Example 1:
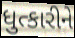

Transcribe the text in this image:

ધુત્કારીને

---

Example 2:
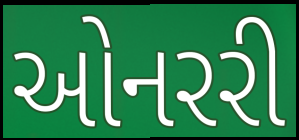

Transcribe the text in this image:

ઓનરરી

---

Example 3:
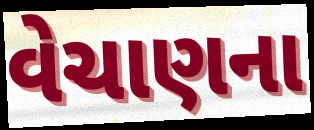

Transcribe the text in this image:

વેચાણના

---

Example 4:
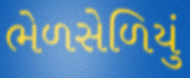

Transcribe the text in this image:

ભેળસેળિયું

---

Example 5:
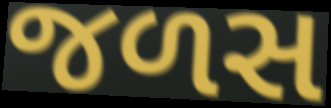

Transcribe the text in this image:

જળસ